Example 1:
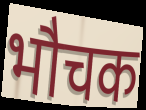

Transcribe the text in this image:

भौचक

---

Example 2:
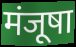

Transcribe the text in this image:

मंजूषा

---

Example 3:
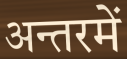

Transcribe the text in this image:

अन्तरमें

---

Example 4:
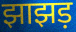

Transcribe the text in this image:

झाझड़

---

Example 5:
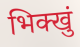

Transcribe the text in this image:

भिक्खुं